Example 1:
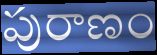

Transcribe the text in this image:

పురాణం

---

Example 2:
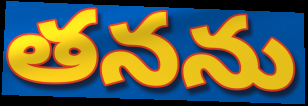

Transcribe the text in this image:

తనను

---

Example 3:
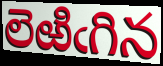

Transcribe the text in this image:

లెఱిఁగిన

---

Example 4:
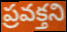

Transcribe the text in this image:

ప్రవక్తని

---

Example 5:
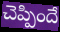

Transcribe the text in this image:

చెప్పిందే